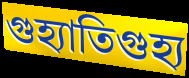
গুহ্যাতিগুহ্য